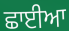
ਛਾਈਆ